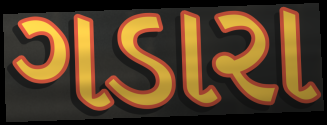
ગડારા